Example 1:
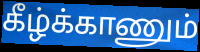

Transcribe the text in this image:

கீழ்க்காணும்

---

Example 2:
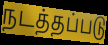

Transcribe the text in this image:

நடத்தப்படு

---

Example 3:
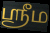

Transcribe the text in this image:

ஶ்ரீம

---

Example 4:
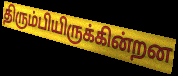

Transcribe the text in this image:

திரும்பியிருக்கின்றன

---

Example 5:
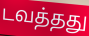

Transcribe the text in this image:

டவத்தது